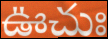
ఊచుః